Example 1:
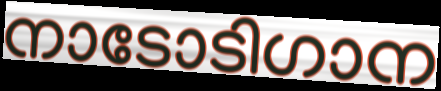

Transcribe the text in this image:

നാടോടിഗാന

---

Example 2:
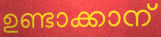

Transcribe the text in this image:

ഉണ്ടാക്കാന്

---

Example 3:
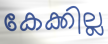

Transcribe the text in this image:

കേക്കില്ല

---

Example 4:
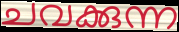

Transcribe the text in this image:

ചവക്കുന്ന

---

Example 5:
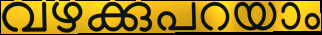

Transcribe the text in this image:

വഴക്കുപറയാം